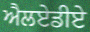
ਐਲਏਡੀਏ